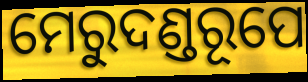
ମେରୁଦଣ୍ଡରୂପେ